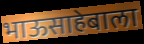
भाऊसाहेबाला